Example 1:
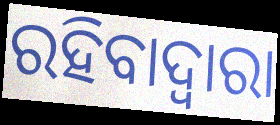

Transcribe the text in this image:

ରହିବାଦ୍ଵାରା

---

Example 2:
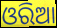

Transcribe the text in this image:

ଓରିଆ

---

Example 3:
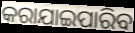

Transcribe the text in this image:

କରାଯାଇପାରିବ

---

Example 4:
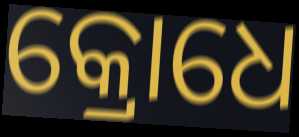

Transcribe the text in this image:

କ୍ରୋଧେ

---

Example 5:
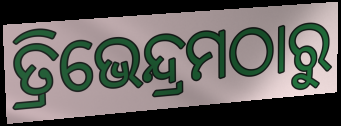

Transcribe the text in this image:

ତ୍ରିଭେନ୍ଦ୍ରମଠାରୁ